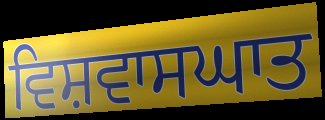
ਵਿਸ਼ਵਾਸਘਾਤ